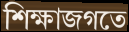
শিক্ষাজগতে